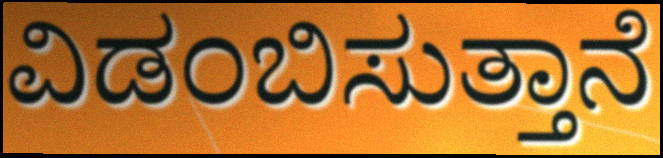
ವಿಡಂಬಿಸುತ್ತಾನೆ